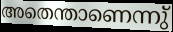
അതെന്താണെന്നു്